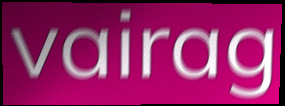
vairag